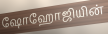
ஷோஹோஜியின்